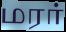
மரர்